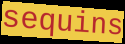
sequins